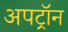
अपट्रॉन